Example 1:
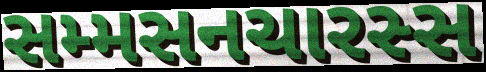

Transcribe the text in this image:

સમ્મસનચારસ્સ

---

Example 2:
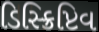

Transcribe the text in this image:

ડિસ્ક્રિપ્ટિવ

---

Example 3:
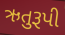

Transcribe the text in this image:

ઋતુરૂપી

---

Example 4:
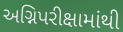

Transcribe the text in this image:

અગ્નિપરીક્ષામાંથી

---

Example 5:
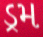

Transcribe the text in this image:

ડ્રમ